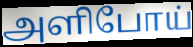
அளிபோய்